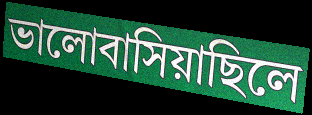
ভালোবাসিয়াছিলে